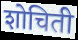
शोचिती